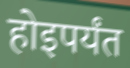
होइपर्यंत